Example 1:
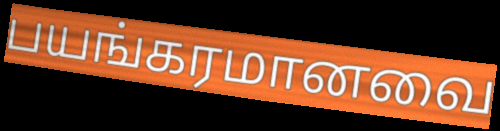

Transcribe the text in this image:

பயங்கரமானவை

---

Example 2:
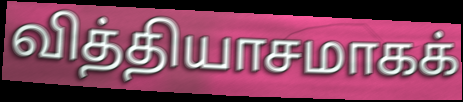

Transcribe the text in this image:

வித்தியாசமாகக்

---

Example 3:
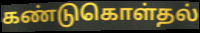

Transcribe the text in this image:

கண்டுகொள்தல்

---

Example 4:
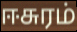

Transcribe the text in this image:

ஈசுரம்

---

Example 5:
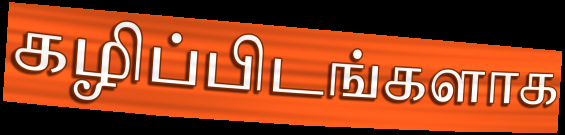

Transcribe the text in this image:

கழிப்பிடங்களாக